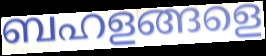
ബഹളങ്ങളെ